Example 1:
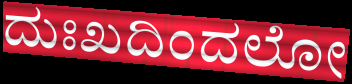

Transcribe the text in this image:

ದುಃಖದಿಂದಲೋ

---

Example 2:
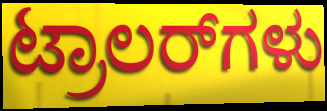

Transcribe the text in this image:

ಟ್ರಾಲರ್‌ಗಳು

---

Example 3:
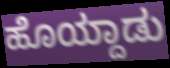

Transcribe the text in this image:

ಹೊಯ್ದಾಡು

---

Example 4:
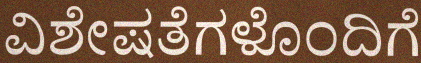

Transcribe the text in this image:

ವಿಶೇಷತೆಗಳೊಂದಿಗೆ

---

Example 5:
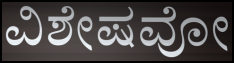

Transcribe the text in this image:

ವಿಶೇಷವೋ